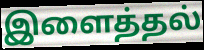
இளைத்தல்